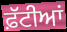
ਫ਼ੱਟੀਆਂ